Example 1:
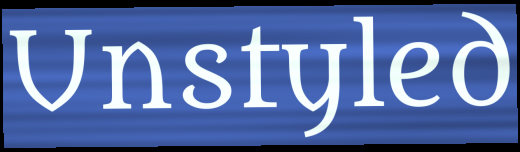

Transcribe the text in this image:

Unstyled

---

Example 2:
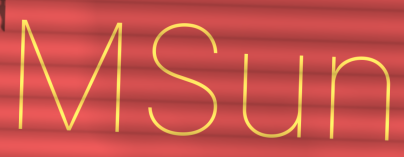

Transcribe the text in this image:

MSun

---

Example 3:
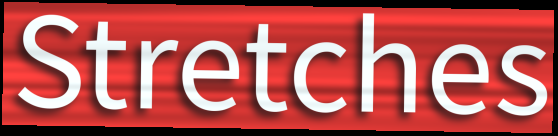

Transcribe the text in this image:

Stretches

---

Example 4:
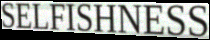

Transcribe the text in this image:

SELFISHNESS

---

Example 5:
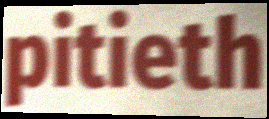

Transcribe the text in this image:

pitieth